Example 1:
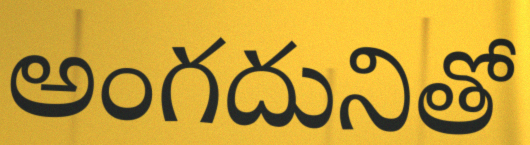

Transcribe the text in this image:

అంగదునితో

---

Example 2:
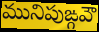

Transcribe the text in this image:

మునిపుఙ్గవౌ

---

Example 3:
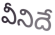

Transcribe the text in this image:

వీనిదే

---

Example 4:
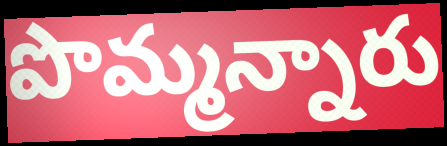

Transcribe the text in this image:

పొమ్మన్నారు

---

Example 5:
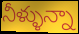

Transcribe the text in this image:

నీళ్ళున్నా